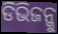
ଡିଭିଜନ୍କୁ